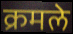
क्रमले